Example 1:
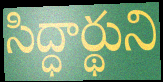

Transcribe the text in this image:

సిద్ధార్థుని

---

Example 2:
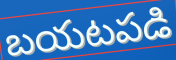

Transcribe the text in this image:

బయటపడి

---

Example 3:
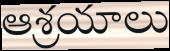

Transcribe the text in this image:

ఆశ్రయాలు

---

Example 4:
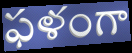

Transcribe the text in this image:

ఫళంగా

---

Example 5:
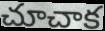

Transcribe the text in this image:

చూచాక